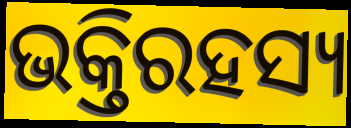
ଭକ୍ତିରହସ୍ୟ